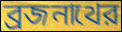
ব্রজনাথের